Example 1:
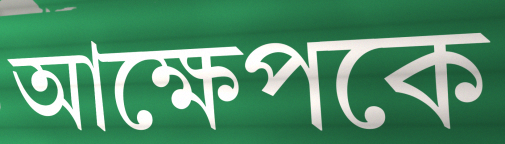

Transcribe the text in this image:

আক্ষেপকে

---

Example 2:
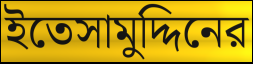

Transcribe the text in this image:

ইতেসামুদ্দিনের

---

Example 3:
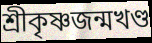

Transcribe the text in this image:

শ্রীকৃষ্ণজন্মখণ্ড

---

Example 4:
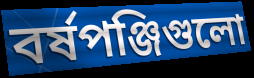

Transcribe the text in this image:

বর্ষপঞ্জিগুলো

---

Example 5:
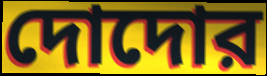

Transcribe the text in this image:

দোদোর